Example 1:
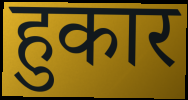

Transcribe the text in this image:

हुकार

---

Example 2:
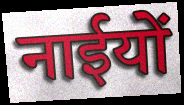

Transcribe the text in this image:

नाईयों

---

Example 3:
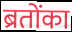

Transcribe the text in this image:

ब्रतोंका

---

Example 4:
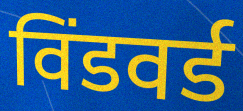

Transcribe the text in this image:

विंडवर्ड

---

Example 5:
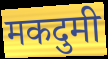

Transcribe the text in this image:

मकदुमी